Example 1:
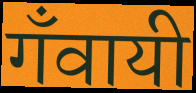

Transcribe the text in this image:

गँवायी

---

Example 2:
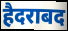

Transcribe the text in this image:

हैदराबद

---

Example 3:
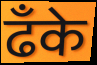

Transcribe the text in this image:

ढँके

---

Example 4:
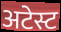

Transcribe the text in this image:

अटेस्ट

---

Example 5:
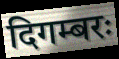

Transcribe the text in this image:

दिगम्बरः